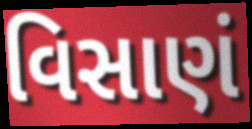
વિસાણં